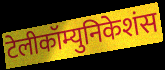
टेलीकॉम्युनिकेशंस